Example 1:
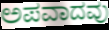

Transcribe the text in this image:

ಅಪವಾದವು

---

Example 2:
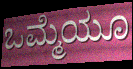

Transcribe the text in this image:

ಒಮ್ಮೆಯೂ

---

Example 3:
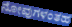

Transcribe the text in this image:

ನೋವುಗಳಂತಹ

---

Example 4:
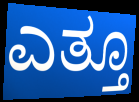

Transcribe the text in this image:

ಎತ್ತೂ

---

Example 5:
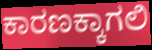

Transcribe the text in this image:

ಕಾರಣಕ್ಕಾಗಲಿ